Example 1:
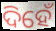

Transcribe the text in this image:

ଦିହେଁ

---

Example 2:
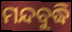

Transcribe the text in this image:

ମନ୍ଦବୁଦ୍ଧି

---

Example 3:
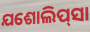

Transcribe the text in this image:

ଯଶୋଲିପ୍‌ସା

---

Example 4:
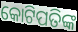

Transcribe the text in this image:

କୋଟିପତିଙ୍କ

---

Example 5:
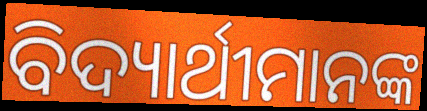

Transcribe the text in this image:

ବିଦ୍ୟାର୍ଥୀମାନଙ୍କ